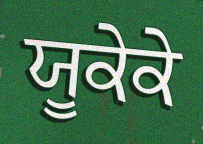
ਯੂਕੇਕੇ